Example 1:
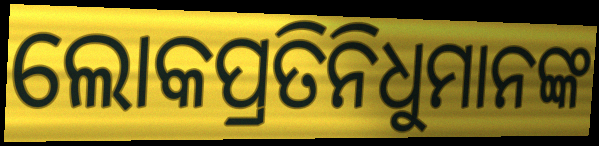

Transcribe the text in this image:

ଲୋକପ୍ରତିନିଧୁମାନଙ୍କ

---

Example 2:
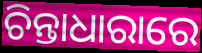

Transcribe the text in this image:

ଚିନ୍ତାଧାରାରେ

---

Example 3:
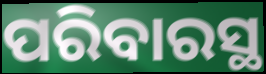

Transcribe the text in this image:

ପରିବାରସ୍ଥ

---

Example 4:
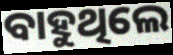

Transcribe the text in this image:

ବାହୁଥିଲେ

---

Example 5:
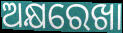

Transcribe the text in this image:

ଅକ୍ଷରେଖା